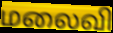
மலைவி